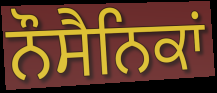
ਨੌਸੈਨਿਕਾਂ